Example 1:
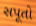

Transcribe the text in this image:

સપૂતો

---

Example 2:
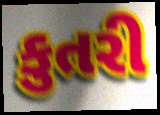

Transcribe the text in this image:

કુતરી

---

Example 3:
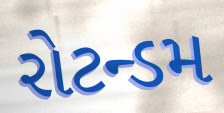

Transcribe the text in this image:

રોટન્ડમ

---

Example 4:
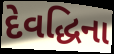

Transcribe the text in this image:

દેવદ્ધિના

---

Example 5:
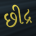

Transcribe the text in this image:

છીદ્ર